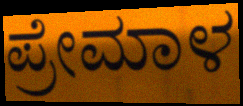
ಪ್ರೇಮಾಳ